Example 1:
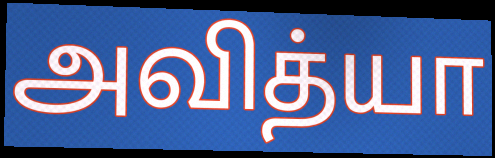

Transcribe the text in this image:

அவித்யா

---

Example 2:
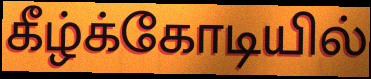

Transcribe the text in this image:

கீழ்க்கோடியில்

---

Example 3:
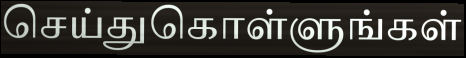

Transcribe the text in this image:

செய்துகொள்ளுங்கள்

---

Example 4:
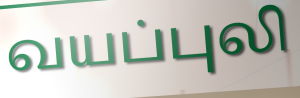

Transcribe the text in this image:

வயப்புலி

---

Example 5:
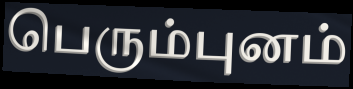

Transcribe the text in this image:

பெரும்புனம்